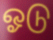
ஓடு